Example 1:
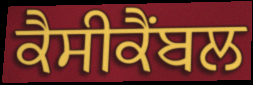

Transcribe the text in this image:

ਕੈਸੀਕੈਂਬਲ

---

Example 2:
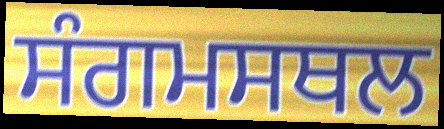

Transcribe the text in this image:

ਸੰਗਮਸਥਲ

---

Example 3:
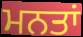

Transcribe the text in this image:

ਮਨਤਾਂ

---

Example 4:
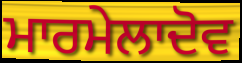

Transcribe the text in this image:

ਮਾਰਮੇਲਾਦੋਵ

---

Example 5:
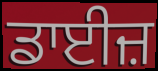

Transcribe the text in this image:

ਡਾਈਜ਼